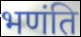
भणंति